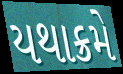
યથાક્રમે